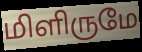
மிளிருமே